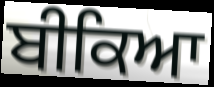
ਬੀਕਿਆ